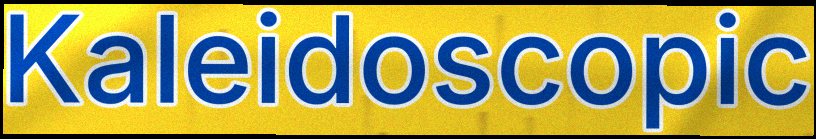
Kaleidoscopic